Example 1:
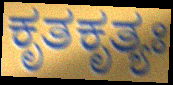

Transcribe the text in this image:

ಕೃತಕೃತ್ಯಃ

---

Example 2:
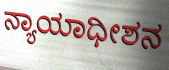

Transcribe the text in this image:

ನ್ಯಾಯಾಧೀಶನ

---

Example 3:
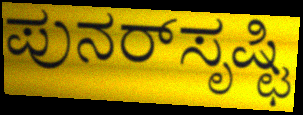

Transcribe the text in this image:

ಪುನರ್‌ಸೃಷ್ಟಿ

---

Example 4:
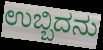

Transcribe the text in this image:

ಉಬ್ಬಿದನು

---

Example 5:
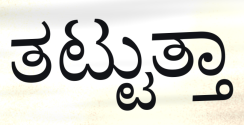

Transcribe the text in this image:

ತಟ್ಟುತ್ತಾ